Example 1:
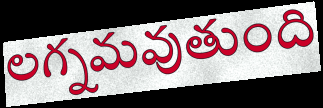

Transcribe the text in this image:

లగ్నమవుతుంది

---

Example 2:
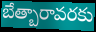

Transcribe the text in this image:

బేత్బారావరకు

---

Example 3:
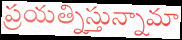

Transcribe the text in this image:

ప్రయత్నిస్తున్నామా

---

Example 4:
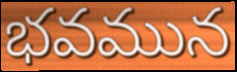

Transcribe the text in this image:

భవమున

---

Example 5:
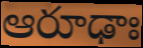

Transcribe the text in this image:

ఆరూఢాః